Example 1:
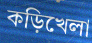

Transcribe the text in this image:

কড়িখেলা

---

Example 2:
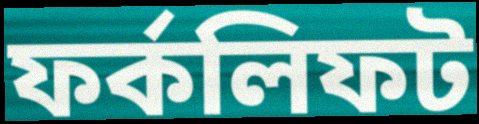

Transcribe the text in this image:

ফর্কলিফট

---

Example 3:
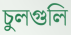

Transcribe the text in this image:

চুলগুলি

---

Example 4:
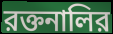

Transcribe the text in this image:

রক্তনালির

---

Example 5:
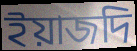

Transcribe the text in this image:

ইয়াজদি